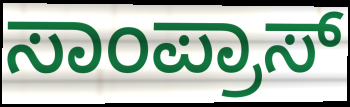
ಸಾಂಪ್ರಾಸ್